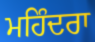
ਮਹਿੰਦਰਾ